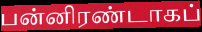
பன்னிரண்டாகப்